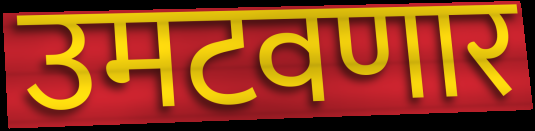
उमटवणार